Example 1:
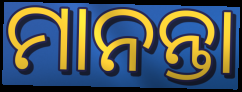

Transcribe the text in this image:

ମାନନ୍ତା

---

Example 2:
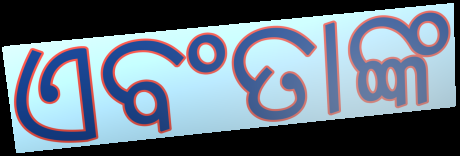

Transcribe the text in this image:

ଏବଂତାଙ୍କ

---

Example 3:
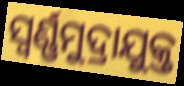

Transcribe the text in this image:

ସ୍ବର୍ଣ୍ଣମୁଦ୍ରାଯୁକ୍ତ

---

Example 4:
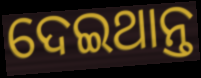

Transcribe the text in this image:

ଦେଇଥାନ୍ତ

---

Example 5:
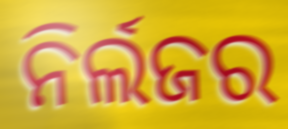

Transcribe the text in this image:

ନିର୍ଲଜର